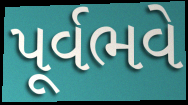
પૂર્વભવે